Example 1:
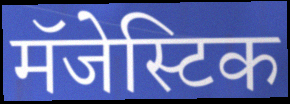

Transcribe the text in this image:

मॅजेस्टिक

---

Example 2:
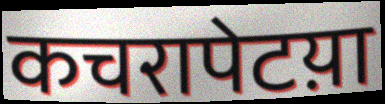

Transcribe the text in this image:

कचरापेटय़ा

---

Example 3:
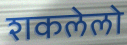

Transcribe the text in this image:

शकलेलो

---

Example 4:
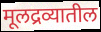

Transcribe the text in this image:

मूलद्रव्यातील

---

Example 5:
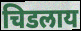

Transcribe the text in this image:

चिडलाय